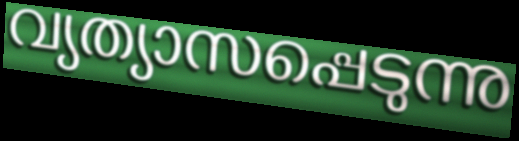
വ്യത്യാസപ്പെടുന്നു